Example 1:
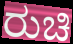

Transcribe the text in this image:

ರುಚಿ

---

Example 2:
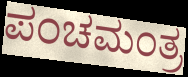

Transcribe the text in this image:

ಪಂಚಮಂತ್ರ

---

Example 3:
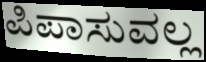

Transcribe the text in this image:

ಪಿಪಾಸುವಲ್ಲ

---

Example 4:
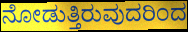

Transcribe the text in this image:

ನೋಡುತ್ತಿರುವುದರಿಂದ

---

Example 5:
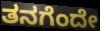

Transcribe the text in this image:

ತನಗೆಂದೇ